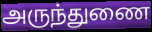
அருந்துணை